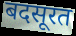
बदसूरत